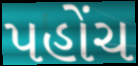
પહોંચ